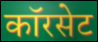
कॉरसेट